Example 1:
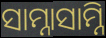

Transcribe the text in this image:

ସାମ୍ନାସାମ୍ନି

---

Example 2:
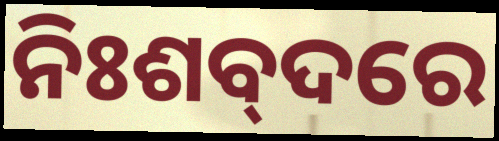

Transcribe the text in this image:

ନିଃଶବ୍‌ଦରେ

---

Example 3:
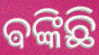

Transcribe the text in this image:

ଵଙ୍କିଛି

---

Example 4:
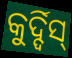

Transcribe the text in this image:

କୁର୍ଦ୍ଦିସ୍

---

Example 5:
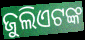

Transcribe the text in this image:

ଜୁଲିଏଟଙ୍କ